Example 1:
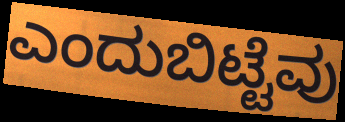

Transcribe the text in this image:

ಎಂದುಬಿಟ್ಟೆವು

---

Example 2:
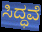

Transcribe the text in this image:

ಸಿದ್ಧವೆ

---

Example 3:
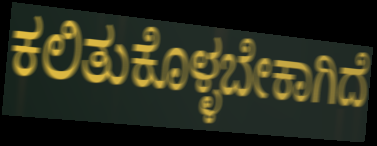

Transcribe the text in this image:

ಕಲಿತುಕೊಳ್ಳಬೇಕಾಗಿದೆ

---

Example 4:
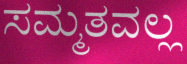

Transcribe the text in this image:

ಸಮ್ಮತವಲ್ಲ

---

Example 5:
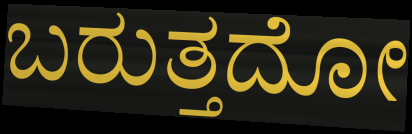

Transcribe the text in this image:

ಬರುತ್ತದೋ